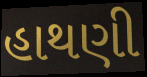
હાથણી